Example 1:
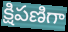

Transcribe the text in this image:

క్షిపణిగా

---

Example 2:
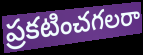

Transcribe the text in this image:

ప్రకటించగలరా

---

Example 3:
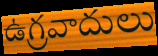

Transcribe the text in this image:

ఉగ్రవాదులు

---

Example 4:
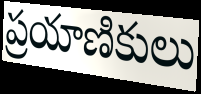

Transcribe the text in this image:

ప్రయాణికులు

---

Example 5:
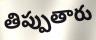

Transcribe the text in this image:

తిప్పుతారు